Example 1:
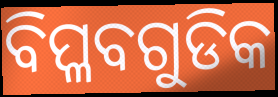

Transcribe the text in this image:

ବିପ୍ଳବଗୁଡିକ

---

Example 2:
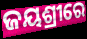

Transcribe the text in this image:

ଜୟଶ୍ରୀରେ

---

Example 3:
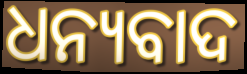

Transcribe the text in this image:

ଧନ୍ଯବାଦ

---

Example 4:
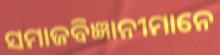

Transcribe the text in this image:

ସମାଜବିଜ୍ଞାନୀମାନେ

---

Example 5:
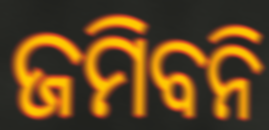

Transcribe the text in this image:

ଜମିବନି